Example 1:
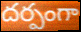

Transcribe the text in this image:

దర్పంగా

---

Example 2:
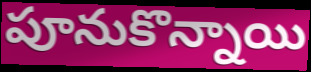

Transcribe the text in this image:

పూనుకొన్నాయి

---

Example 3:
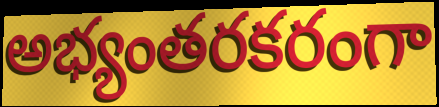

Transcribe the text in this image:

అభ్యంతరకరంగా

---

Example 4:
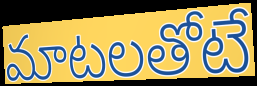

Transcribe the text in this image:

మాటలతోటే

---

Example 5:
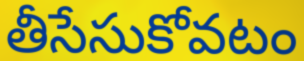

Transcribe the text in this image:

తీసేసుకోవటం